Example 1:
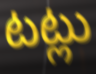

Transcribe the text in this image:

టట్లు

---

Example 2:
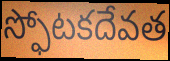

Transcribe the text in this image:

స్ఫోటకదేవత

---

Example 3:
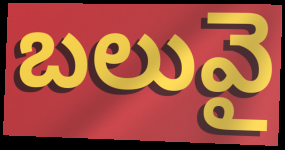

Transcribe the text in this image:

బలువై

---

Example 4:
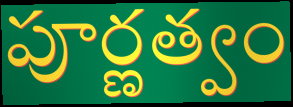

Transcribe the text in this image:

పూర్ణత్వం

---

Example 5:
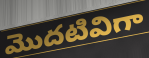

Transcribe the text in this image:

మొదటివిగా